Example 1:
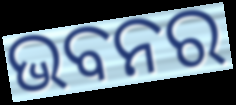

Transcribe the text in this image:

ଭବନର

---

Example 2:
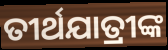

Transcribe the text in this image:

ତୀର୍ଥଯାତ୍ରୀଙ୍କ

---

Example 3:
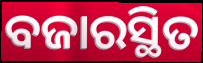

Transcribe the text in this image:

ବଜାରସ୍ଥିତ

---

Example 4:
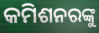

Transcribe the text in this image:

କମିଶନରଙ୍କୁ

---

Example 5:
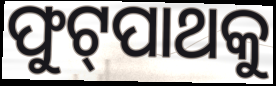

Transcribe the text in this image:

ଫୁଟ୍‌ପାଥକୁ